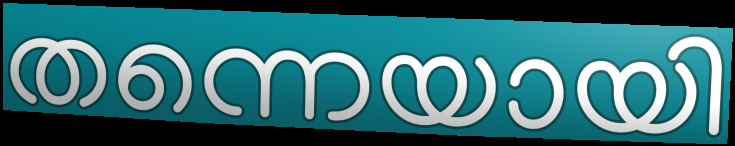
തന്നെയായി